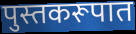
पुस्तकरूपात